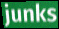
junks